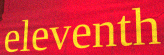
eleventh